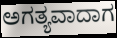
ಅಗತ್ಯವಾದಾಗ